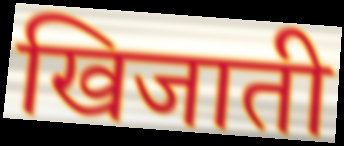
खिजाती